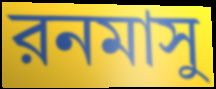
রনমাসু